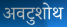
अवटुशोथ